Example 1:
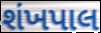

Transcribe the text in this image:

શંખપાલ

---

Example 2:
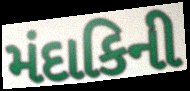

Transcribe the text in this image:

મંદાકિની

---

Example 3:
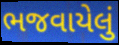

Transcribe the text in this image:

ભજવાયેલું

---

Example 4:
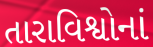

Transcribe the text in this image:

તારાવિશ્વોનાં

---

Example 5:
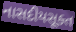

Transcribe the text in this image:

નાસદીયસૂક્ત